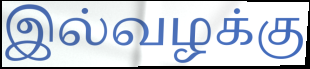
இல்வழக்கு